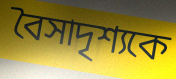
বৈসাদৃশ্যকে